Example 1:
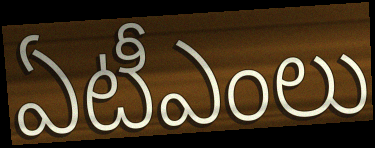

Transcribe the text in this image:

ఏటీఎంలు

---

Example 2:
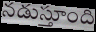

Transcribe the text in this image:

నడుస్తూంది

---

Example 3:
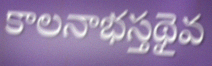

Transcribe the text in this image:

కాలనాభస్తథైవ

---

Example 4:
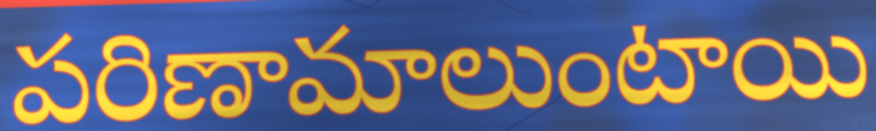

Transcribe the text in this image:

పరిణామాలుంటాయి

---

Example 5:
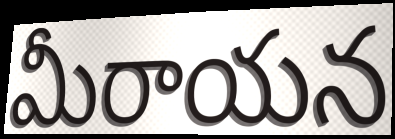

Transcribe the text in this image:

మీరాయన